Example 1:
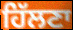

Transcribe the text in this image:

ਹਿੱਲਣਾ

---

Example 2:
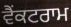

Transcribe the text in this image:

ਵੈਂਕਟਰਾਮ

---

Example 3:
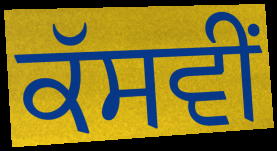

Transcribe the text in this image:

ਕੱਸਵੀਂ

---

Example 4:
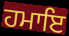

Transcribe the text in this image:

ਹਮਾਇ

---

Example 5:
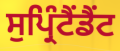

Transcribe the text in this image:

ਸੁਪ੍ਰਿੰਟੈਂਡੈਂਟ